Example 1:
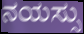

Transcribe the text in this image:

ನಯಸ್ಸು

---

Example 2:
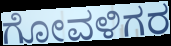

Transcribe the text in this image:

ಗೋವಳಿಗರ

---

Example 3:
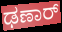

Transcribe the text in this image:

ಢಣಾರ್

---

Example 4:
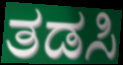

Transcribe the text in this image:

ತಡಸಿ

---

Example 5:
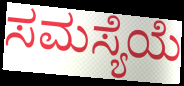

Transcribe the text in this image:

ಸಮಸ್ಯೆಯೆ